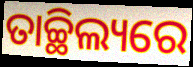
ତାଚ୍ଛିଲ୍ୟରେ